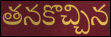
తనకొచ్చిన